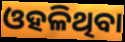
ଓହଳିଥିବା